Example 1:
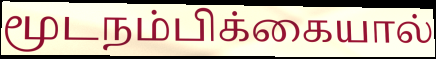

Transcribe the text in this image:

மூடநம்பிக்கையால்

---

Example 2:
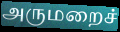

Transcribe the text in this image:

அருமறைச்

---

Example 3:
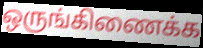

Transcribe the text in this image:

ஒருங்கிணைக்க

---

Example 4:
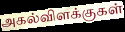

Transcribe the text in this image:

அகல்விளக்குகள்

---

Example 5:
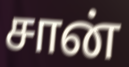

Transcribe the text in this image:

சான்